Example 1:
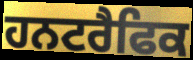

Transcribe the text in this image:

ਹਨਟਰੈਫਿਕ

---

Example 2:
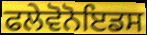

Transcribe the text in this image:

ਫਲੇਵੋਨੋਇਡਸ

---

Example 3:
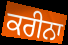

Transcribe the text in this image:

ਕਰੀਨਾ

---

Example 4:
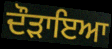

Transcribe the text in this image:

ਦੌੜਾਇਆ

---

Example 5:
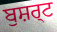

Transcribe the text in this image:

ਬੁਸ਼ਰ੍ਟ